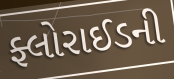
ફ્લોરાઈડની